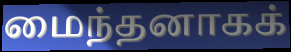
மைந்தனாகக்